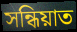
সন্ধিয়াত